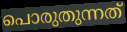
പൊരുതുന്നത്